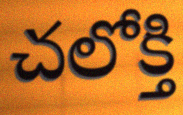
చలోక్తి